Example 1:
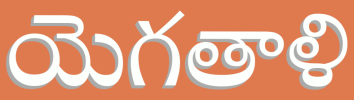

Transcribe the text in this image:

యెగతాళి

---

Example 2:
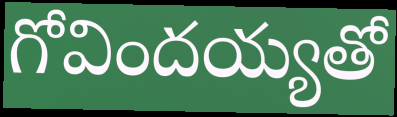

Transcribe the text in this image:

గోవిందయ్యతో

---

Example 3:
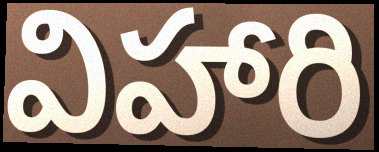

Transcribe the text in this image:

విహారి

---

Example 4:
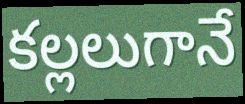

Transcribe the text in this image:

కల్లలుగానే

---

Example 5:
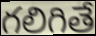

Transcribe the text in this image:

గలిగితే